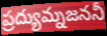
ప్రద్యుమ్నజననీ